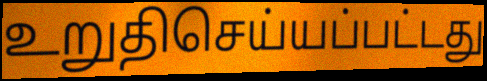
உறுதிசெய்யப்பட்டது